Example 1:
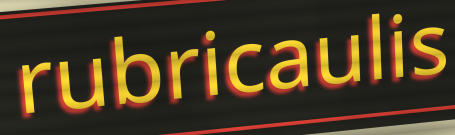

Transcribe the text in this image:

rubricaulis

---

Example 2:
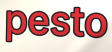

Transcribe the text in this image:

pesto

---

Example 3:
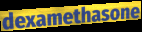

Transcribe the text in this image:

dexamethasone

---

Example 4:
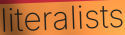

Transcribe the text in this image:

literalists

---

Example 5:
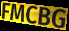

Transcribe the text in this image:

FMCBG